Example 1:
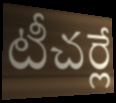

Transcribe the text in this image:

టీచర్లే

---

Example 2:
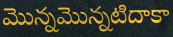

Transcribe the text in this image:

మొన్నమొన్నటిదాకా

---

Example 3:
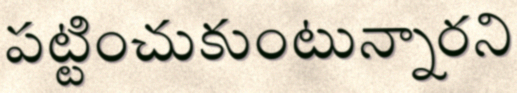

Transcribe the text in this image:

పట్టించుకుంటున్నారని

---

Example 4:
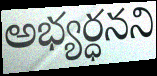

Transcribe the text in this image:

అభ్యర్ధనని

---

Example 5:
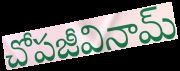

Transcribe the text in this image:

చోపజీవినామ్